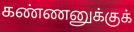
கண்ணனுக்குக்